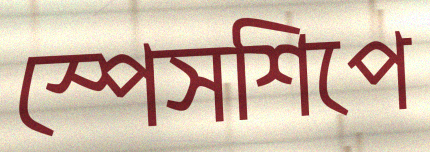
স্পেসশিপে